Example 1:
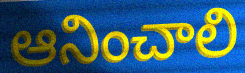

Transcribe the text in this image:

ఆనించాలి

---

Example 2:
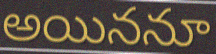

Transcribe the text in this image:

అయిననూ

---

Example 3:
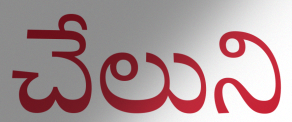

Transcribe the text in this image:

చేలుని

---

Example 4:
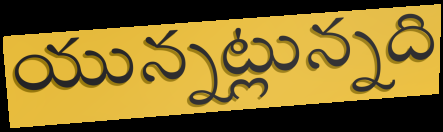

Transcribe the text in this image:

యున్నట్లున్నది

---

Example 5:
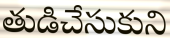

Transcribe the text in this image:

తుడిచేసుకుని